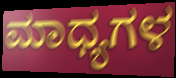
ಮಾಧ್ಯಗಳ